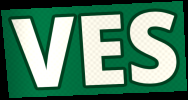
VES